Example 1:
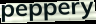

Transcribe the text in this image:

peppery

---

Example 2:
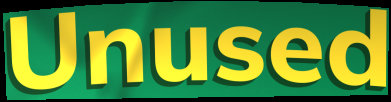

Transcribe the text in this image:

Unused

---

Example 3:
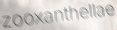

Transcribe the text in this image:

zooxanthellae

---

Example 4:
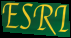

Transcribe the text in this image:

ESRI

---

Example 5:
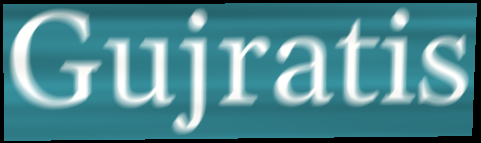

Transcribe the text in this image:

Gujratis